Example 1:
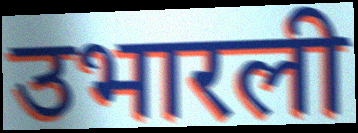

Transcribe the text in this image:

उभारली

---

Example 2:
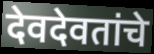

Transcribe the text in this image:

देवदेवतांचे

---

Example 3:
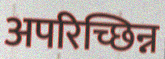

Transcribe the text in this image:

अपरिच्छिन्न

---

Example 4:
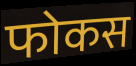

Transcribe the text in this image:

फोकस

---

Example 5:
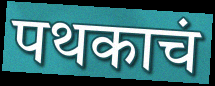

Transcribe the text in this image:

पथकाचं